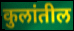
कुलांतील